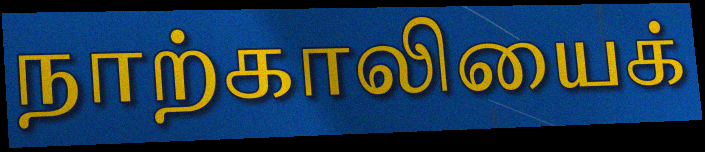
நாற்காலியைக்